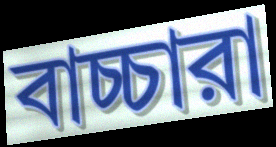
বাচ্চারা